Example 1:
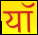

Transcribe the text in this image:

यॉ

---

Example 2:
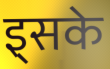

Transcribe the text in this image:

इ्सके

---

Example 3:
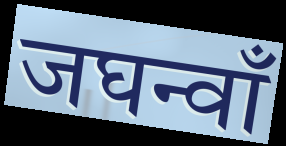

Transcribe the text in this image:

जघन्वाँ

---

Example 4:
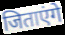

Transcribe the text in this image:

जिताएंगे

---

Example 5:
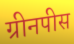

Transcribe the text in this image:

ग्रीनपीस